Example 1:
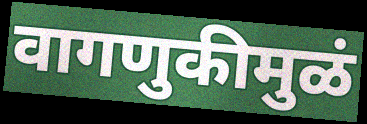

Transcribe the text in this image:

वागणुकीमुळं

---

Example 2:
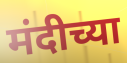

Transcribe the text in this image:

मंदीच्या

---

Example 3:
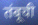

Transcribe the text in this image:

तंबूची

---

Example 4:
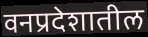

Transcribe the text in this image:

वनप्रदेशातील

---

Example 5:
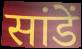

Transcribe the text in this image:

सांडें